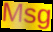
Msg